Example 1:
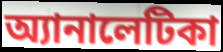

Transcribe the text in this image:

অ্যানালেটিকা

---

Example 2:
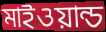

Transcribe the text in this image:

মাইওয়ান্ড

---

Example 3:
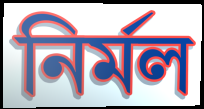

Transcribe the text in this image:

নির্মল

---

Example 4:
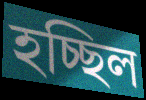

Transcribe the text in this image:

হচ্ছিল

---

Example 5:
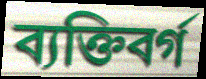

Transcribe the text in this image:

ব্যক্তিবর্গ